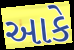
આકે